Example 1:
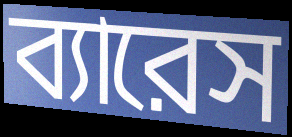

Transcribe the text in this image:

ব্যারেস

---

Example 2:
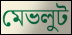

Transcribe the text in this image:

মেভলুট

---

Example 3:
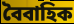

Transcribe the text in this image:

বৈবাহিক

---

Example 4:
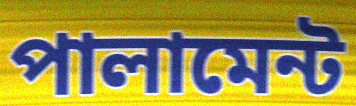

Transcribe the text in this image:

পালামেন্ট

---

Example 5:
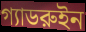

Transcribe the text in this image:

গ্যাডরুইন